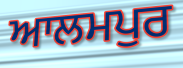
ਆਲਮਪੁਰ